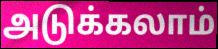
அடுக்கலாம்